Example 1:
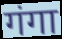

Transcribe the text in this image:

गंगा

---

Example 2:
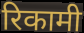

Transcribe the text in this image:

रिकामी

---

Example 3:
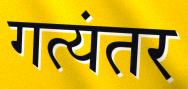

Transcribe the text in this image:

गत्यंतर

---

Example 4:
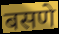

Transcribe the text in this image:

बसणे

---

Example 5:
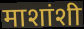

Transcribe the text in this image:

माशांशी